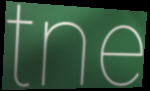
tne